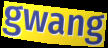
gwang